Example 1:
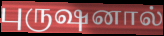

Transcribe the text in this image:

புருஷனால்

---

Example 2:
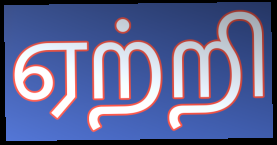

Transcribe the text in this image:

ஏற்றி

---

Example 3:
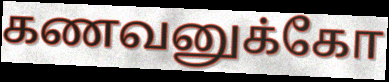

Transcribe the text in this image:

கணவனுக்கோ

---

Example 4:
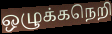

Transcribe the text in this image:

ஒழுக்கநெறி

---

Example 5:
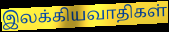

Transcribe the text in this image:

இலக்கியவாதிகள்